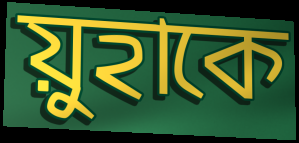
য়ুহাকে